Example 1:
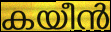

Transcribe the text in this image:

കയീൻ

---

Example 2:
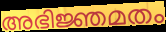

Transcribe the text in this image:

അഭിജ്ഞമതം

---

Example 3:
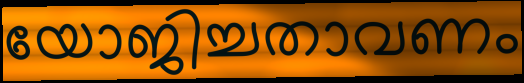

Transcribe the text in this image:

യോജിച്ചതാവണം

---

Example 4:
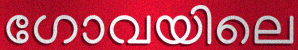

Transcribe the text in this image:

ഗോവയിലെ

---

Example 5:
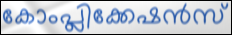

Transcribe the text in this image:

കോംപ്ലിക്കേഷൻസ്